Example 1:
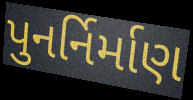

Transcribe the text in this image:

પુનર્નિર્માણ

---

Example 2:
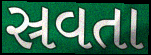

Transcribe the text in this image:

સ્રવતા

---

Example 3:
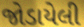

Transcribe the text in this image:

જોડાયેલી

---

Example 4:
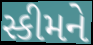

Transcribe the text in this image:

સ્કીમને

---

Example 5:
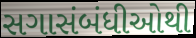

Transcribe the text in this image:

સગાસંબંધીઓથી